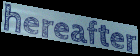
hereafter